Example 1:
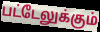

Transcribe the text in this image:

பட்டேலுக்கும்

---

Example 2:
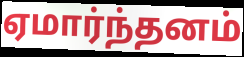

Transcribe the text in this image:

ஏமார்ந்தனம்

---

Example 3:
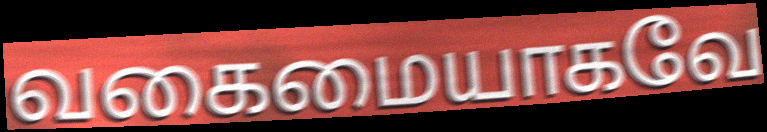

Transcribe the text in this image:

வகைமையாகவே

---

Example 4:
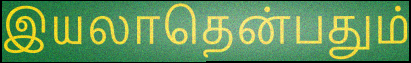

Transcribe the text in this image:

இயலாதென்பதும்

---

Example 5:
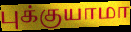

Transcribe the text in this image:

புக்குயாமா